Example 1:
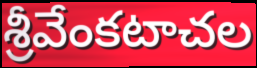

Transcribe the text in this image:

శ్రీవేంకటాచల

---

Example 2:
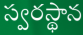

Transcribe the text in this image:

స్వరస్థాన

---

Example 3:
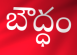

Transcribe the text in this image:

బౌద్ధం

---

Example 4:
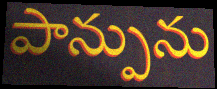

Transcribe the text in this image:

పాన్పును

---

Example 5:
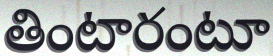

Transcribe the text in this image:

తింటారంటూ